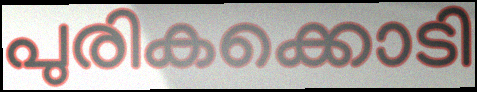
പുരികക്കൊടി